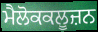
ਮੈਲੋਕਕਲੂਜ਼ਨ